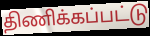
திணிக்கப்பட்டு